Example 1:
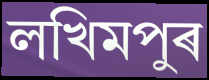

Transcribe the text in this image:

লখিমপুৰ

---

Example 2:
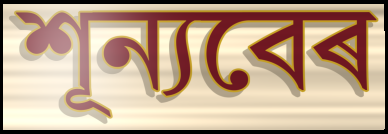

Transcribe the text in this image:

শূন্যবেৰ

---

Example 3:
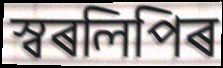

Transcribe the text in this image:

স্বৰলিপিৰ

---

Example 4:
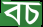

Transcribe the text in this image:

বচ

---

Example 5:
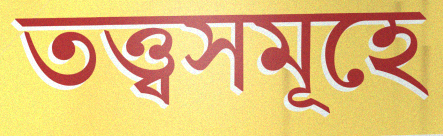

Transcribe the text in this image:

তত্ত্বসমূহে